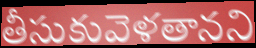
తీసుకువెళతానని